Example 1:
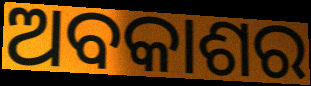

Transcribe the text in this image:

ଅବକାଶର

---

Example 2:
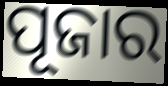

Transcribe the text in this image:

ପୂଜାର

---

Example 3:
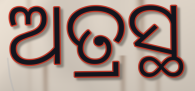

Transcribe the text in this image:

ଅତ୍ରସ୍ଥ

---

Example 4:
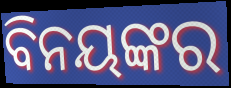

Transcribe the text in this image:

ବିନୟଙ୍କର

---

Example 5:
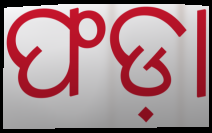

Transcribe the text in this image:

ଫଡ଼ା